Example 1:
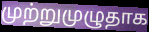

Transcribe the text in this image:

முற்றுமுழுதாக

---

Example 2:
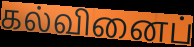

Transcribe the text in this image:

கல்வினைப்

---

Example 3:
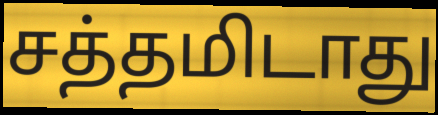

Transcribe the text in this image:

சத்தமிடாது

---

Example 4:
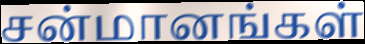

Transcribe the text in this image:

சன்மானங்கள்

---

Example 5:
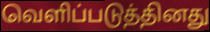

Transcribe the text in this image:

வெளிப்படுத்தினது